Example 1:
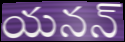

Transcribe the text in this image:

యనన్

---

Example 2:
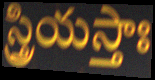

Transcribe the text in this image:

స్త్రియస్తాః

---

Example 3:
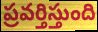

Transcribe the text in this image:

ప్రవర్తిస్తుంది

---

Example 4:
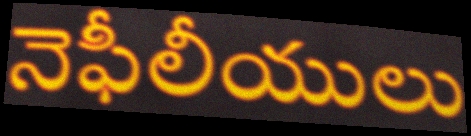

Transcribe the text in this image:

నెఫీలీయులు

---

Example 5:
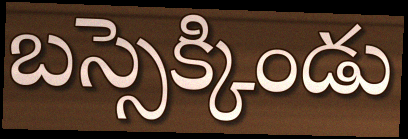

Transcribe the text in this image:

బస్సెక్కిండు